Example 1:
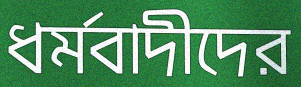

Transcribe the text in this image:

ধর্মবাদীদের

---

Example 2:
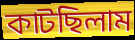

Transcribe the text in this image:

কাটছিলাম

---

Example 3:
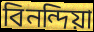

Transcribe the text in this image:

বিনন্দিয়া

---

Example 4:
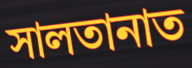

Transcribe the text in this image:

সালতানাত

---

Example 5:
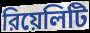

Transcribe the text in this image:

রিয়েলিটি